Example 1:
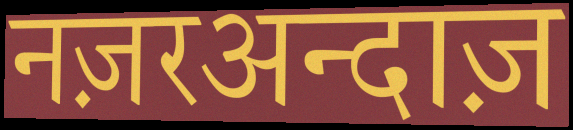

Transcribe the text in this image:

नज़रअन्दाज़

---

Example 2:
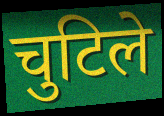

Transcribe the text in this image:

चुटिले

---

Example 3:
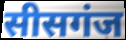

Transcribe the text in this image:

सीसगंज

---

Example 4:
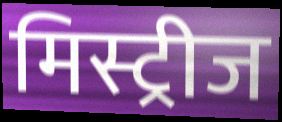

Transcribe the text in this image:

मिस्ट्रीज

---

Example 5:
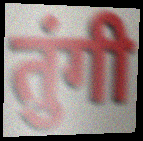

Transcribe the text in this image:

तुंगी